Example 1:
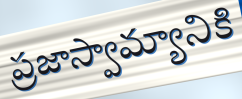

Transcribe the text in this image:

ప్రజాస్వామ్యానికి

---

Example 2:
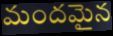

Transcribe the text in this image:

మందమైన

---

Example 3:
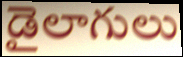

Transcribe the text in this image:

డైలాగులు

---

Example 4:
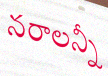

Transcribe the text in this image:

నరాలన్నీ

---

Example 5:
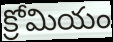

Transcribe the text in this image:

క్రోమియం